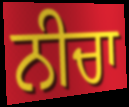
ਨੀਚਾ